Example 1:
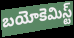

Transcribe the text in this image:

బయోకెమిస్ట్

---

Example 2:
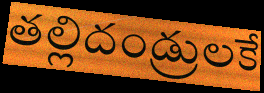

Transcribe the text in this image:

తల్లిదండ్రులకే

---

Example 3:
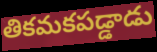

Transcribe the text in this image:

తికమకపడ్డాడు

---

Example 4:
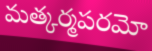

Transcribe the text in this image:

మత్కర్మపరమో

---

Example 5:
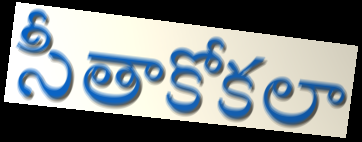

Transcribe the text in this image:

సీతాకోకలా